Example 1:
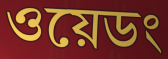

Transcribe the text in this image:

ওয়েডং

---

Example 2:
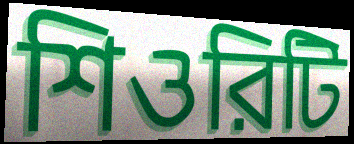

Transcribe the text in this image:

শিওরিটি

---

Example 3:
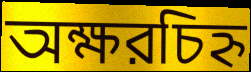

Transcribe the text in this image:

অক্ষরচিহ্ন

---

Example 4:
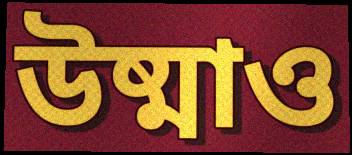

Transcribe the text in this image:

উষ্মাও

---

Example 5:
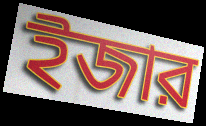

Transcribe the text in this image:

ইজার